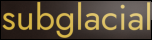
subglacial